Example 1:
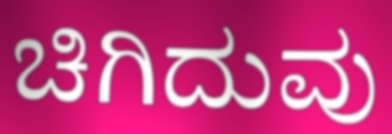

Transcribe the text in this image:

ಚಿಗಿದುವು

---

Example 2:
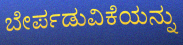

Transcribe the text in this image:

ಬೇರ್ಪಡುವಿಕೆಯನ್ನು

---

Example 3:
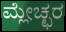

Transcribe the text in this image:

ಮ್ಲೇಚ್ಛರ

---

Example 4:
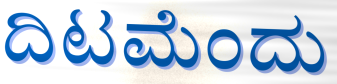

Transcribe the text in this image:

ದಿಟಮೆಂದು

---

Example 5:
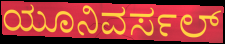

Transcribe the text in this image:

ಯೂನಿವರ್ಸಲ್